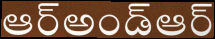
ఆర్అండ్ఆర్